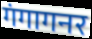
गंगागनर